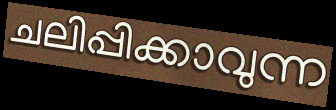
ചലിപ്പിക്കാവുന്ന